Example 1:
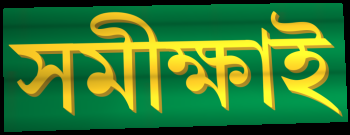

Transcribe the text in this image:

সমীক্ষাই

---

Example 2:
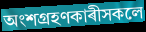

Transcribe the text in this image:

অংশগ্ৰহণকাৰীসকলে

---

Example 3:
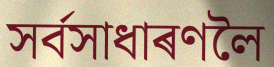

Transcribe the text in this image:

সৰ্বসাধাৰণলৈ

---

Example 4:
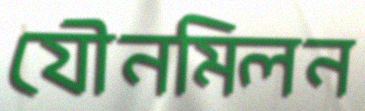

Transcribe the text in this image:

যৌনমিলন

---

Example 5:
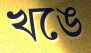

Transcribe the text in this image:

খঙে